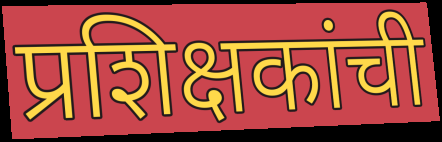
प्रशिक्षकांची